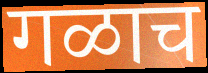
गळाच